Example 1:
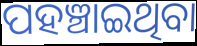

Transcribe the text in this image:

ପହଞ୍ଚାଇଥିବା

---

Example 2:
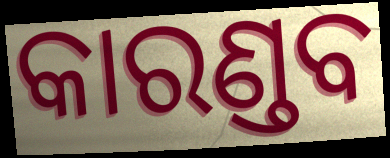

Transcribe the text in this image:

କାରଣ୍ଡବ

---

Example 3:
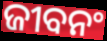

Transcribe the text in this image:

ଜୀବନଂ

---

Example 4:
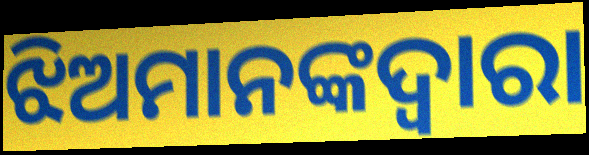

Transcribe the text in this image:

ଝିଅମାନଙ୍କଦ୍ଵାରା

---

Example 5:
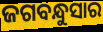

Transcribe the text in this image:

ଜଗବନ୍ଧୁସାର